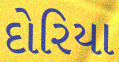
દોરિયા